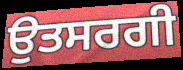
ਉਤਸਰਗੀ